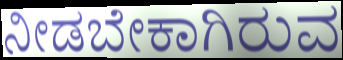
ನೀಡಬೇಕಾಗಿರುವ